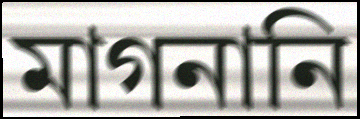
মাগনানি